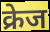
क्रेज